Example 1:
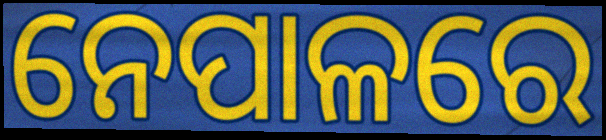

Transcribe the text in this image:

ନେପାଳରେ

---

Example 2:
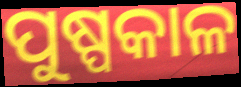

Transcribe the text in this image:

ପୁଷ୍ପକାଳ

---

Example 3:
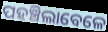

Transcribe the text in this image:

ପହଞ୍ଚିଲାବେଳେ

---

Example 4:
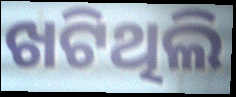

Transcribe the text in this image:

ଖଟିଥିଲି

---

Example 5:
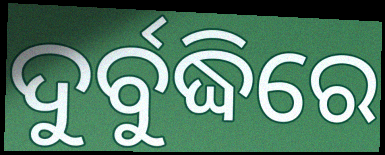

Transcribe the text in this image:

ଦୁର୍ବୁଦ୍ଧିରେ